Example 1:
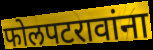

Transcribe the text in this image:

फोलपटरावांना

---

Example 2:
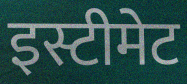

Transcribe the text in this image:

इस्टीमेट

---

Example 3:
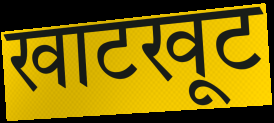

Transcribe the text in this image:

खाटखूट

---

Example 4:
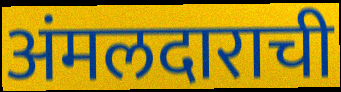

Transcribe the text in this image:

अंमलदाराची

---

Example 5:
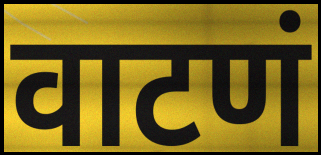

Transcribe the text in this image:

वाटणं